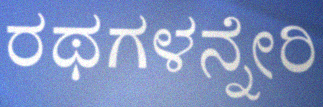
ರಥಗಳನ್ನೇರಿ